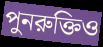
পুনরুক্তিও